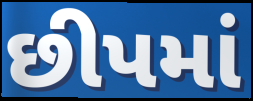
છીપમાં